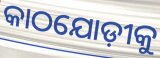
କାଠଯୋଡ଼ୀକୁ